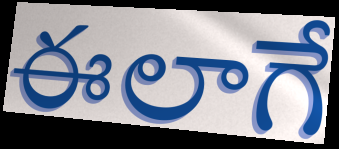
ఈలాగే